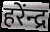
हरेंन्द्र